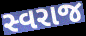
સ્વરાજ